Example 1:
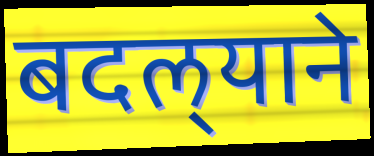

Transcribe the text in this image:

बदल्याने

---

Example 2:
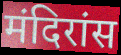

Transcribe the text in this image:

मंदिरांस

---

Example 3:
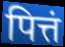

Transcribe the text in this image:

पित्तं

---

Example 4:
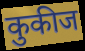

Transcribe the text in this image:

कुकीज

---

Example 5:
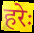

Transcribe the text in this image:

हरेः